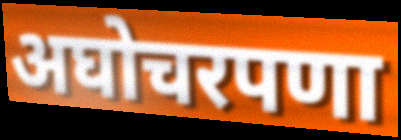
अघोचरपणा